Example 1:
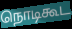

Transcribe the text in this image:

நொடிகூட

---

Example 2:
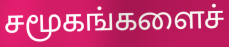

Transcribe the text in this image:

சமூகங்களைச்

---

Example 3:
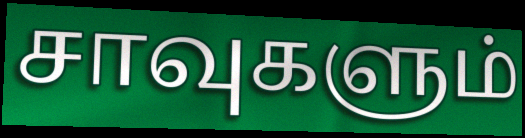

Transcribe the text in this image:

சாவுகளும்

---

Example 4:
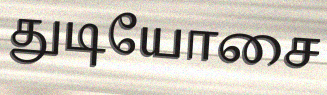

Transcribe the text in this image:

துடியோசை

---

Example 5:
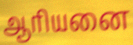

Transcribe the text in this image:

ஆரியனை